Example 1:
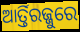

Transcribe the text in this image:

ଆର୍ତ୍ତିରଜ୍ଜୁରେ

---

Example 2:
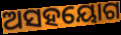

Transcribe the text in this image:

ଅସହୟୋଗ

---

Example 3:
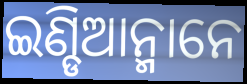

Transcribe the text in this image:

ଇଣ୍ଡିଆନ୍ମାନେ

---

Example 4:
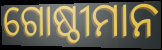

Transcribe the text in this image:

ଗୋଷ୍ଠୀମାନ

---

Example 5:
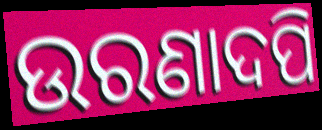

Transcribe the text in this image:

ଉରଣାଦପି